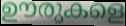
ഊരുകളെ